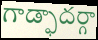
గాడ్ఫాదర్గా